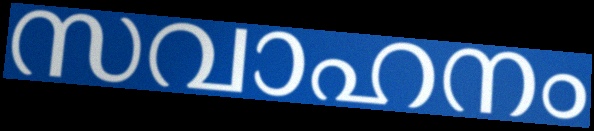
സവാഹനം